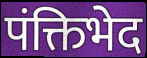
पंक्तिभेद